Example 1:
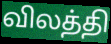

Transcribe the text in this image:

விலத்தி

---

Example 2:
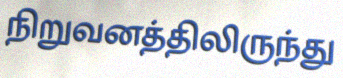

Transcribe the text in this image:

நிறுவனத்திலிருந்து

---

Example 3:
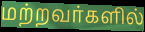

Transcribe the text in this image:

மற்றவர்களில்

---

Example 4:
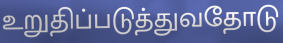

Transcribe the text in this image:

உறுதிப்படுத்துவதோடு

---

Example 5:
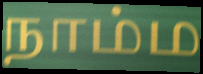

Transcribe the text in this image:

நாம்ம